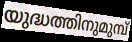
യുദ്ധത്തിനുമുമ്പ്